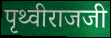
पृथ्वीराजजी